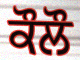
ਕੌਲੌ